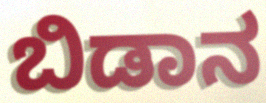
ಬಿಡಾನ